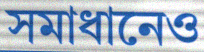
সমাধানেও